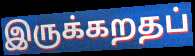
இருக்கறதப்